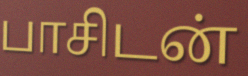
பாசிடன்